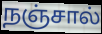
நஞ்சால்